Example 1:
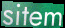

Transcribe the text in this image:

sitem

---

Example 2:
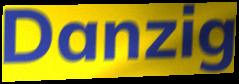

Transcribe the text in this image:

Danzig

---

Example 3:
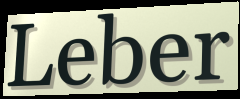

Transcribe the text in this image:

Leber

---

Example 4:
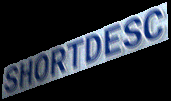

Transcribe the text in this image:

SHORTDESC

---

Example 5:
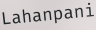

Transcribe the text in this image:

Lahanpani